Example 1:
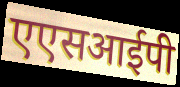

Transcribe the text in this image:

एएसआईपी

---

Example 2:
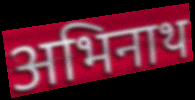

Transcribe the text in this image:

अभिनाथ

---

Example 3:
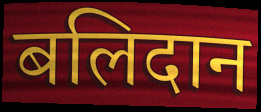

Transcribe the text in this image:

बलिदान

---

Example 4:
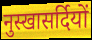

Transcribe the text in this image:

नुस्खासर्दियों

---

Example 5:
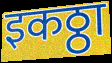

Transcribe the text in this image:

इकठ्ठा